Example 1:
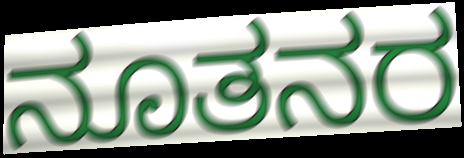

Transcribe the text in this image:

ನೂತನರ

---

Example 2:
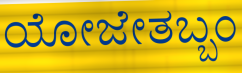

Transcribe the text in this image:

ಯೋಜೇತಬ್ಬಂ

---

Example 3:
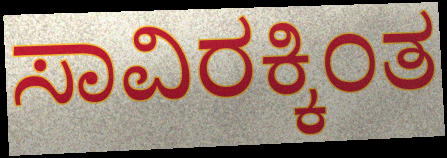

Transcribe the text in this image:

ಸಾವಿರಕ್ಕಿಂತ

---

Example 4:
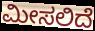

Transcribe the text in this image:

ಮೀಸಲಿದೆ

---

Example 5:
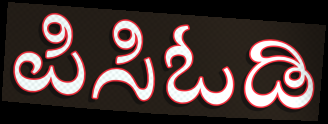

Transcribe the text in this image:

ಪಿಸಿಓಡಿ